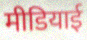
मीडियाई